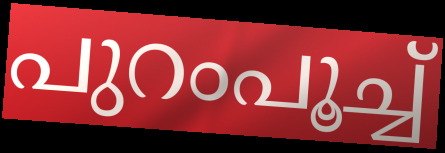
പുറംപൂച്ച്